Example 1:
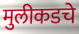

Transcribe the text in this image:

मुलीकडचे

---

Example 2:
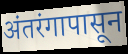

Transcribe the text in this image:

अंतरंगापासून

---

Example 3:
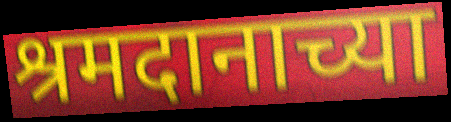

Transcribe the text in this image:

श्रमदानाच्या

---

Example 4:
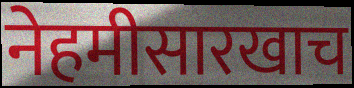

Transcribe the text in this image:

नेहमीसारखाच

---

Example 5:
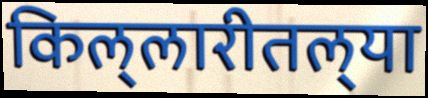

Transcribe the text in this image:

किल्लारीतल्या